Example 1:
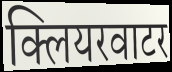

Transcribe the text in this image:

क्लियरवाटर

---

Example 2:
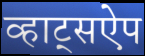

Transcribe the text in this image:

व्हाट्सऐप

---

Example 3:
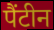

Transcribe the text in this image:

पैंटीन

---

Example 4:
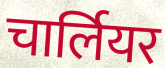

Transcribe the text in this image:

चार्लियर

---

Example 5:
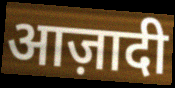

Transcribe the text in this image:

आज़ादी